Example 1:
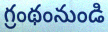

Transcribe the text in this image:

గ్రంథంనుండి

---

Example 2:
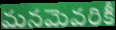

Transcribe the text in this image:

మనమెవరికీ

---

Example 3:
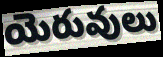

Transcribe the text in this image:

యెరువులు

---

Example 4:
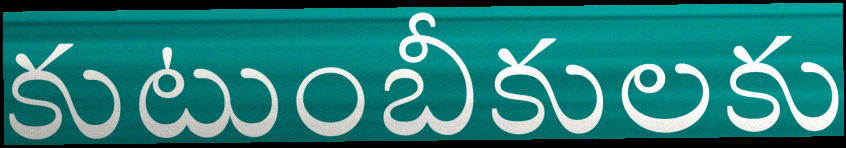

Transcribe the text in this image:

కుటుంబీకులకు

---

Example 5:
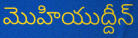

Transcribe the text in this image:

మొహియుద్దీన్